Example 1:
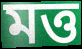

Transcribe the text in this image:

মত্ত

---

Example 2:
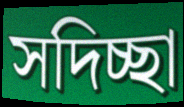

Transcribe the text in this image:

সদিচ্ছা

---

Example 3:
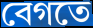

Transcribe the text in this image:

বেগতে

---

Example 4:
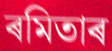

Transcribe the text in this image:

ৰমিতাৰ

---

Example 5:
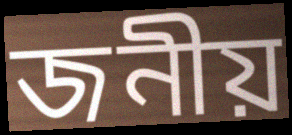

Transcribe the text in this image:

জনীয়